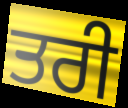
ਤਰੀ